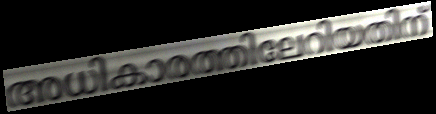
അധികാരത്തിലേറിയതിന്